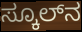
ಸ್ಕೂಲ್‌ನ